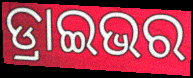
ଡ୍ରାଇଭର